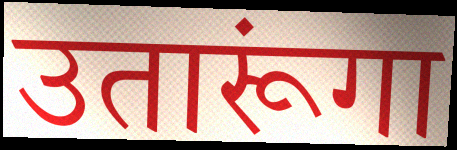
उतारूंगा